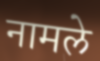
नामले